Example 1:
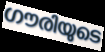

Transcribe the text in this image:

ഗൗരിയുടെ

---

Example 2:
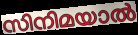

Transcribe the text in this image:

സിനിമയാൽ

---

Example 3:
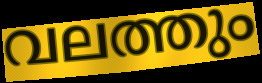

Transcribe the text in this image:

വലത്തും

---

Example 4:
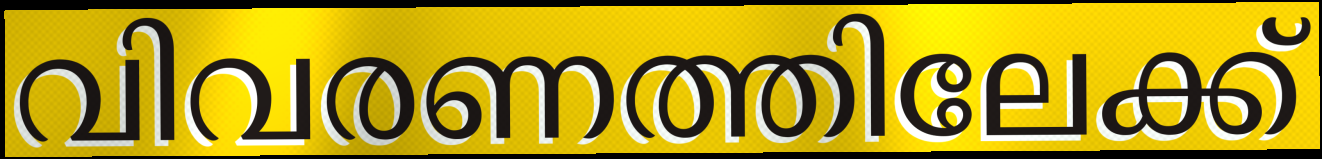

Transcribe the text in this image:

വിവരണത്തിലേക്ക്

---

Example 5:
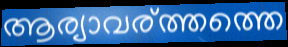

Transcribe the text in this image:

ആര്യാവര്ത്തത്തെ